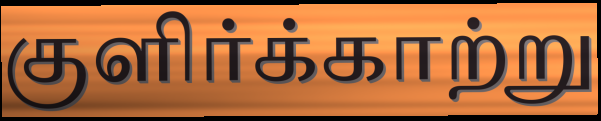
குளிர்க்காற்று